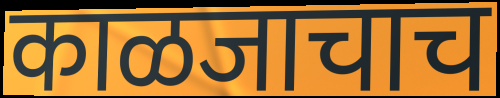
काळजाचाच